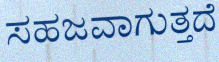
ಸಹಜವಾಗುತ್ತದೆ